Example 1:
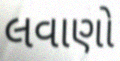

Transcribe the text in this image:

લવાણો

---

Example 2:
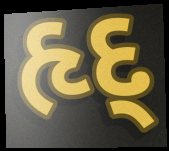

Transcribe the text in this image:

હૃદ્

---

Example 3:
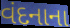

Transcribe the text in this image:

વંદનાના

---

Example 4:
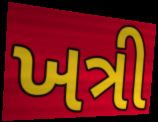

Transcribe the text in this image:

ખત્રી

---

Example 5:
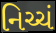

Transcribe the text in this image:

નિચ્ચં